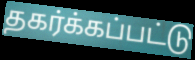
தகர்க்கப்பட்டு